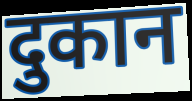
दुकान